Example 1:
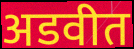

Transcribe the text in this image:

अडवीत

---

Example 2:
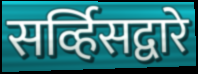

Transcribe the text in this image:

सर्व्हिसद्वारे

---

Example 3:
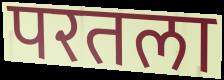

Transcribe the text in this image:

परतला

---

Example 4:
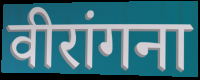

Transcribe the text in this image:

वीरांगना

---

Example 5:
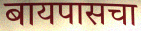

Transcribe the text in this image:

बायपासचा